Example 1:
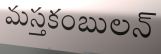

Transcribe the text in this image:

మస్తకంబులన్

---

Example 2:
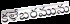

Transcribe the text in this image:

కళేబరమును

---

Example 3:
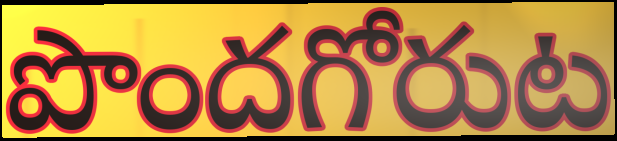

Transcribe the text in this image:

పొందగోరుట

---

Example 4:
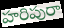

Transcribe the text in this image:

హరిపురా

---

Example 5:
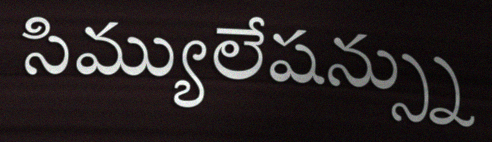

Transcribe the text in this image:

సిమ్యులేషన్స్ను